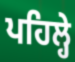
ਪਹਿਲ੍ਹੇ